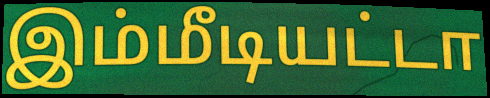
இம்மீடியட்டா